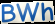
BWh